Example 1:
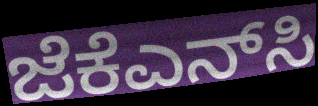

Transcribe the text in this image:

ಜೆಕೆಎನ್‌ಸಿ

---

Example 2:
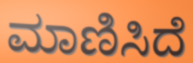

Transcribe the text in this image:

ಮಾಣಿಸಿದೆ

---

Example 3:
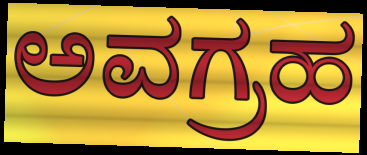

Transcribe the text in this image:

ಅವಗ್ರಹ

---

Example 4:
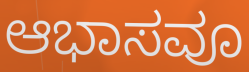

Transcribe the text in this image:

ಆಭಾಸವೂ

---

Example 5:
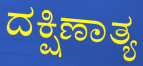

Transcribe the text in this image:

ದಕ್ಷಿಣಾತ್ಯ